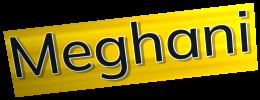
Meghani